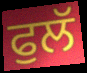
ਫੁਲੱ